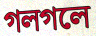
গলগলে